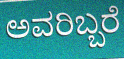
ಅವರಿಬ್ಬರೆ